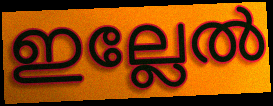
ഇല്ലേൽ